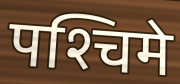
पश्चिमे